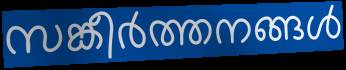
സങ്കീർത്തനങ്ങൾ